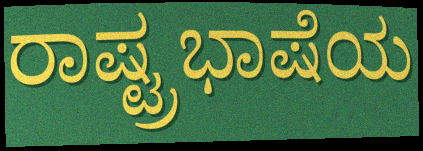
ರಾಷ್ಟ್ರಭಾಷೆಯ